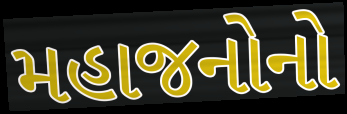
મહાજનોનો